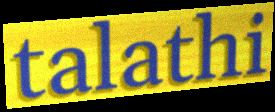
talathi